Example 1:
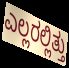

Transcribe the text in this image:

ಎಲ್ಲರಲ್ಲಿತ್ತು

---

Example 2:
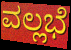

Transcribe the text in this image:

ವಲ್ಲಭೆ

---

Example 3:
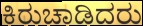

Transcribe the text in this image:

ಕಿರುಚಾಡಿದರು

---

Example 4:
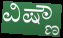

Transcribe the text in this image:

ವಿಷ್ಣೌ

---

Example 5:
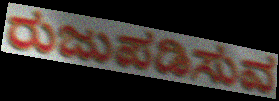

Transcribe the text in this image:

ರುಜುಪಡಿಸುವ